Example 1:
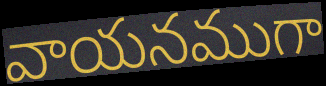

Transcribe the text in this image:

వాయనముగా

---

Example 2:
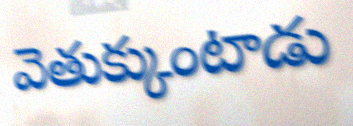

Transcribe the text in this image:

వెతుక్కుంటాడు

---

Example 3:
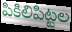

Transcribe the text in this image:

పికిలిపిట్టల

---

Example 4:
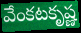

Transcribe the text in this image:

వేంకటకృష్ణ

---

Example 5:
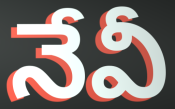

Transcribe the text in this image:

నేవీ